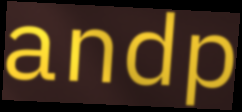
andp